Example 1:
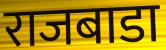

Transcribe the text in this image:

राजबाडा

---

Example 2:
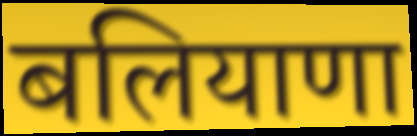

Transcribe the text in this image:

बलियाणा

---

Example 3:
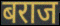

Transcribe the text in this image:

बराज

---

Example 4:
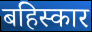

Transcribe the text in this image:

बहिस्कार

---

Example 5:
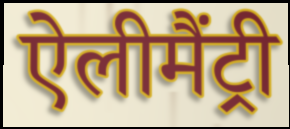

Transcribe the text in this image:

ऐलीमैंट्री